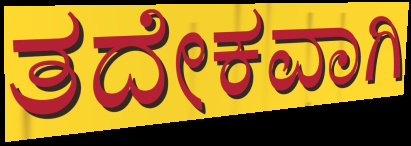
ತದೇಕವಾಗಿ